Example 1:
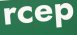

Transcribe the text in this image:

rcep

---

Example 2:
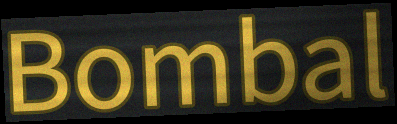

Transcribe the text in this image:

Bombal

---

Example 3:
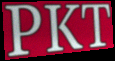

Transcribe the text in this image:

PKT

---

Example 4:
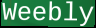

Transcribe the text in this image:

Weebly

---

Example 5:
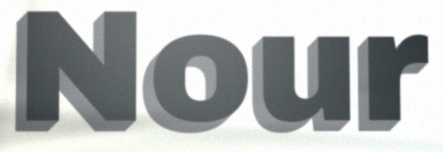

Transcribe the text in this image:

Nour